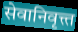
सेवानिवृत्त्त